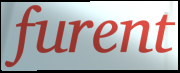
furent